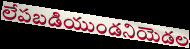
లేపబడియుండనియెడల